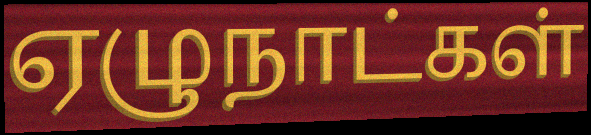
ஏழுநாட்கள்